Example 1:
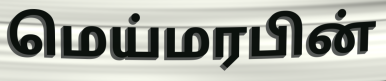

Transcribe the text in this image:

மெய்மரபின்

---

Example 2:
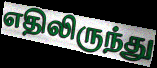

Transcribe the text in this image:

எதிலிருந்து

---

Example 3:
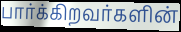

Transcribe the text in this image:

பார்க்கிறவர்களின்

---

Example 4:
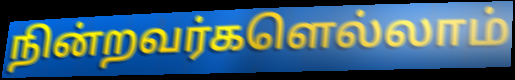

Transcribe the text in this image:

நின்றவர்களெல்லாம்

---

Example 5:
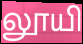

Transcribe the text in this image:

லூயி